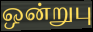
ஒன்றுபு